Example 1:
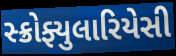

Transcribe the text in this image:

સ્ક્રોફ્યુલારિયેસી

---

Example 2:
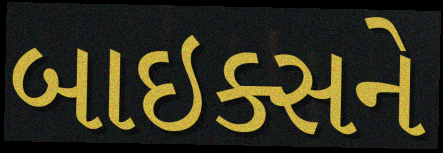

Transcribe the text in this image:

બાઇક્સને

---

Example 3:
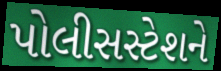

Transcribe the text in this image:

પોલીસસ્ટેશને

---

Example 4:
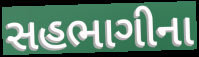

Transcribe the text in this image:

સહભાગીના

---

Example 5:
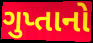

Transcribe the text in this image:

ગુપ્તાનો